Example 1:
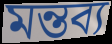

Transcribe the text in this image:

মন্তব্য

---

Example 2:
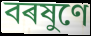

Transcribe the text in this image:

বৰষুণে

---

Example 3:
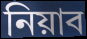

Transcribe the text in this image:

নিয়াব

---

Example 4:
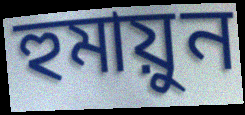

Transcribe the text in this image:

হুমায়ুন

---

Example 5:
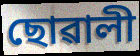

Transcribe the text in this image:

ছোৱালী